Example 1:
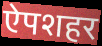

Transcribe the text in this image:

ऐपशहर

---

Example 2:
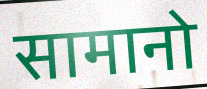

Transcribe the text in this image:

सामानो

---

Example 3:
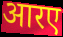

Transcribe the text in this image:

आरए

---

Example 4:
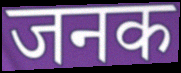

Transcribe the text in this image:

जनक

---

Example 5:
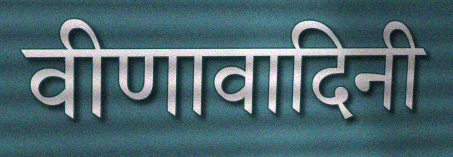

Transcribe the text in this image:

वीणावादिनी